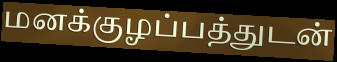
மனக்குழப்பத்துடன்